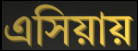
এসিয়ায়